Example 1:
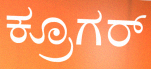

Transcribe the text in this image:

ಕ್ರೂಗರ್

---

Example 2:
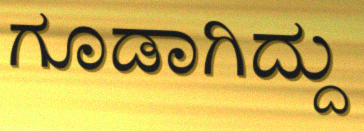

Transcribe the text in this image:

ಗೂಡಾಗಿದ್ದು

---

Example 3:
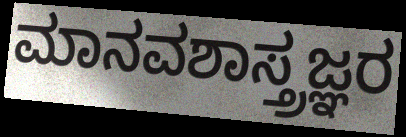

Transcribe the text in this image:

ಮಾನವಶಾಸ್ತ್ರಜ್ಞರ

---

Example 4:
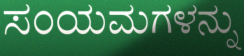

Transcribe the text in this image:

ಸಂಯಮಗಳನ್ನು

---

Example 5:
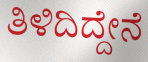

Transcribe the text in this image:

ತಿಳಿದಿದ್ದೇನೆ